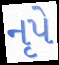
નૃપે